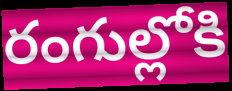
రంగుల్లోకి